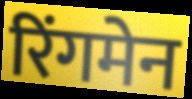
रिंगमेन